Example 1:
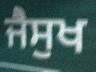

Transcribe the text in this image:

ਜੈਸੁਖ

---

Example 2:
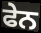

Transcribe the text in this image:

ਫੇਨ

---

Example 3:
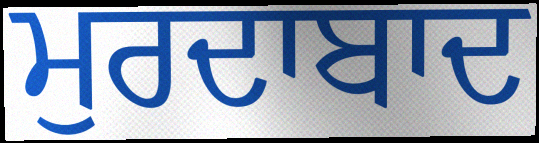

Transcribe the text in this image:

ਮੁਰਦਾਬਾਦ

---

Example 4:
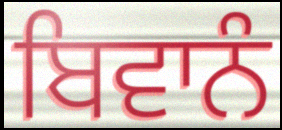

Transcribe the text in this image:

ਬਿਵਾਨੰ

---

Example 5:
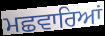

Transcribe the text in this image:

ਮਛਵਾਰਿਆਂ